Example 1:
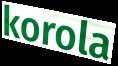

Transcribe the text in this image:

korola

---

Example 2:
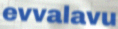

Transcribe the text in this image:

evvalavu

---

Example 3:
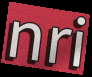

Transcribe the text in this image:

nri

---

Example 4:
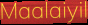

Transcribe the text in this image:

Maalaiyil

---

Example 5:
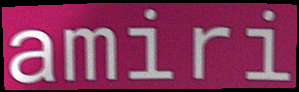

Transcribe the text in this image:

amiri